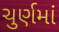
ચુર્ણમાં